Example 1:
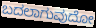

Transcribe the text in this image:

ಬದಲಾಗುವುದೋ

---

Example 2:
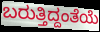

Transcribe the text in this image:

ಬರುತ್ತಿದ್ದಂತೆಯೆ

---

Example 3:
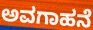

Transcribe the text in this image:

ಅವಗಾಹನೆ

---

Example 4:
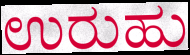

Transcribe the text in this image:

ಉರುಹು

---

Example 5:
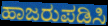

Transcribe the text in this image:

ಹಾಜರುಪಡಿಸಿ